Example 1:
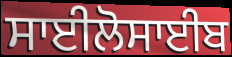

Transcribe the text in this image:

ਸਾਈਲੋਸਾਈਬ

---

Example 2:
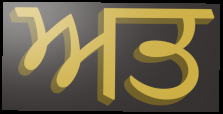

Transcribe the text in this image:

ਅਤ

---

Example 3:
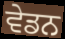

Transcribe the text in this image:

ਵੇਡਨ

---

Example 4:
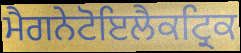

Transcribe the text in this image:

ਮੈਗਨੇਟੋਇਲੈਕਟ੍ਰਿਕ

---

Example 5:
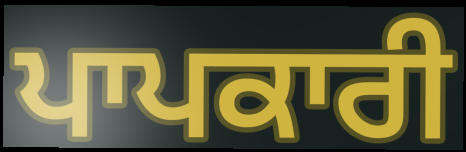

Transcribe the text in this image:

ਪਾਪਕਾਰੀ